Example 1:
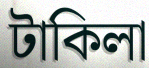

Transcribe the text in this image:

টাকিলা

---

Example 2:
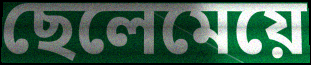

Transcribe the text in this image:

ছেলেমেয়ে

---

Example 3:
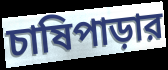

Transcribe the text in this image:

চাষিপাড়ার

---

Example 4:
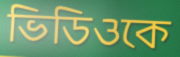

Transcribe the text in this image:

ভিডিওকে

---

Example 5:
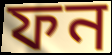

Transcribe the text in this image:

ফন